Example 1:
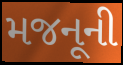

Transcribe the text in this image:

મજનૂની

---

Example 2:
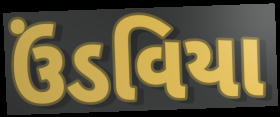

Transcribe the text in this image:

ઉંડવિયા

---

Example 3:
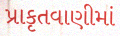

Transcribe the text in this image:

પ્રાકૃતવાણીમાં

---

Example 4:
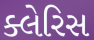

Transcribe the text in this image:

ક્લેરિસ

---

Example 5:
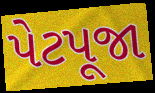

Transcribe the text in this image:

પેટપૂજા